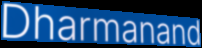
Dharmanand